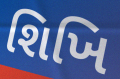
શિખિ